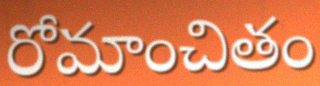
రోమాంచితం